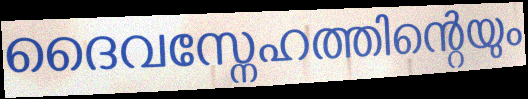
ദൈവസ്നേഹത്തിന്റെയും